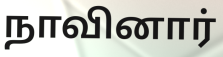
நாவினார்